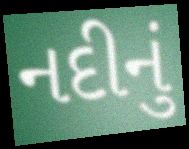
નદીનું